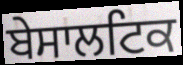
ਬੇਸਾਲਟਿਕ